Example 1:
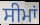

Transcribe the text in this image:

ਸੀਮਾਂ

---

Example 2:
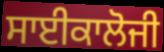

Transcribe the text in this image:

ਸਾਈਕਾਲੋਜੀ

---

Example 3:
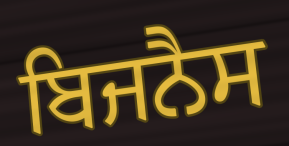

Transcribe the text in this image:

ਬਿਜਨੈਸ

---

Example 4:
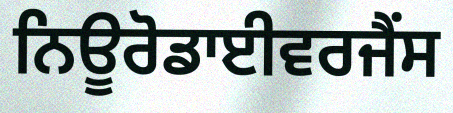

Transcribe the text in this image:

ਨਿਊਰੋਡਾਈਵਰਜੈਂਸ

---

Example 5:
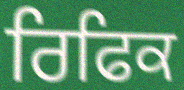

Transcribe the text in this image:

ਰਿਫਿਕ